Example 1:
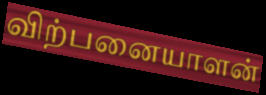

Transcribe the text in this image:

விற்பனையாளன்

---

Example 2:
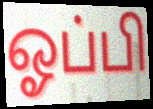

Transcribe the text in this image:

ஓப்பி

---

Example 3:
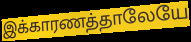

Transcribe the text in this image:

இக்காரணத்தாலேயே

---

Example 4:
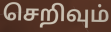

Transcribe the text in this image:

செறிவும்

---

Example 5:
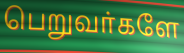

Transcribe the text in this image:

பெறுவர்களே